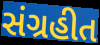
સંગ્રહીત